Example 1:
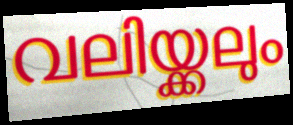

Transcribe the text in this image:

വലിയ്ക്കലും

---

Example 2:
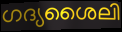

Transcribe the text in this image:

ഗദ്യശൈലി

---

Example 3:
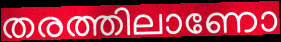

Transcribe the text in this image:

തരത്തിലാണോ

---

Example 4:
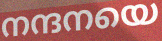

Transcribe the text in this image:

നന്ദനയെ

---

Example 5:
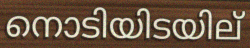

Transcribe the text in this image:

നൊടിയിടയില്